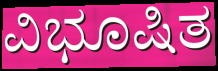
ವಿಭೂಷಿತ